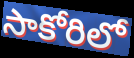
సాకోరిలో